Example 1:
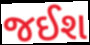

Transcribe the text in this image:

જઈશ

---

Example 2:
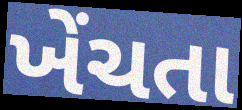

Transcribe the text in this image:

ખેંચતા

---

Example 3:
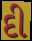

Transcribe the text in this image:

દી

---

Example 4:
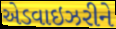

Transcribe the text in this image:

એડવાઇઝરીને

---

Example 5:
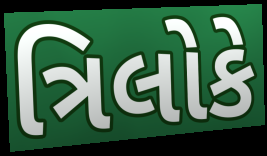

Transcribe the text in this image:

ત્રિલોકે